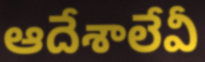
ఆదేశాలేవీ